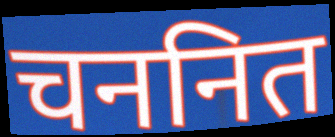
चननित